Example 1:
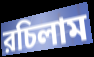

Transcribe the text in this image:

রচিলাম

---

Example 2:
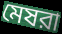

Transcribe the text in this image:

মেষরা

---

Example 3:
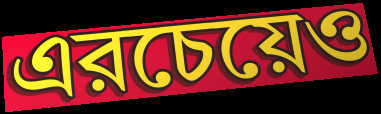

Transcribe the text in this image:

এরচেয়েও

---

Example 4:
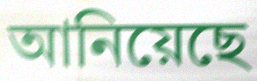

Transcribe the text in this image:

আনিয়েছে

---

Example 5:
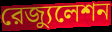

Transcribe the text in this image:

রেজ্যুলেশন